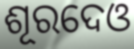
ଶୂରଦେଓ